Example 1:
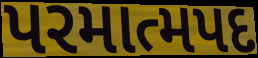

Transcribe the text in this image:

પરમાત્મપદ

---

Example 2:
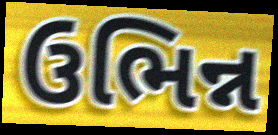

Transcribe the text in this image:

ઉભિન્ન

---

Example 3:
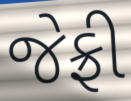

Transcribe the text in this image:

જેફ્રી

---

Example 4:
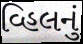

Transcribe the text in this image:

વ્હિલનું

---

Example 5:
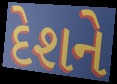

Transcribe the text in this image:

દેશને